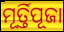
ମୂର୍ତ୍ତିପୂଜା